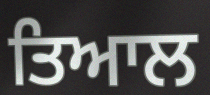
ਤਿਆਲ